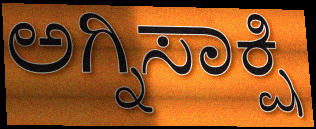
ಅಗ್ನಿಸಾಕ್ಷಿ